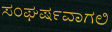
ಸಂಘರ್ಷವಾಗಲಿ